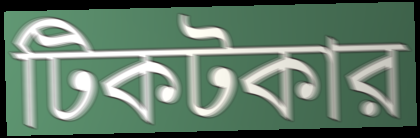
টিকটকার